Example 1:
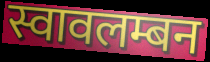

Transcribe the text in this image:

स्वावलम्बन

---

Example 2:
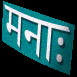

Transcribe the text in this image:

मनाः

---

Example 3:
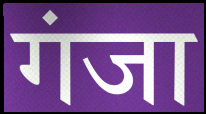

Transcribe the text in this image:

गंजा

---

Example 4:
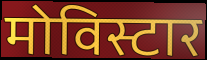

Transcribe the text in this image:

मोविस्टार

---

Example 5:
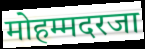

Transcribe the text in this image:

मोहम्मदरजा